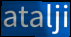
atalji